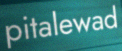
pitalewad